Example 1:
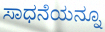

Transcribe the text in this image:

ಸಾಧನೆಯನ್ನೂ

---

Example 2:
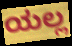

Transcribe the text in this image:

ಯಲ್ಲ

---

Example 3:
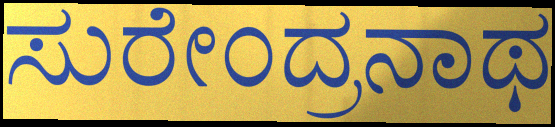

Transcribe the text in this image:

ಸುರೇಂದ್ರನಾಥ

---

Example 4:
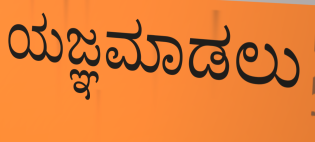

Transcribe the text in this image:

ಯಜ್ಞಮಾಡಲು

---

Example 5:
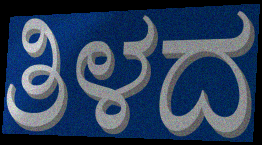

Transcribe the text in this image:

ತಿಳದ